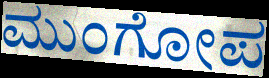
ಮುಂಗೋಪ